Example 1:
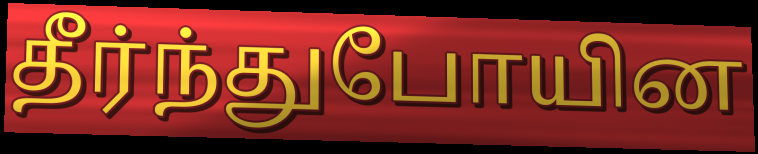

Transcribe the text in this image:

தீர்ந்துபோயின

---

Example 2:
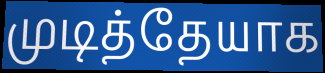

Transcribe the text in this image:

முடித்தேயாக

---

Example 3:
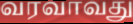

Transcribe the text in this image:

வரவாவது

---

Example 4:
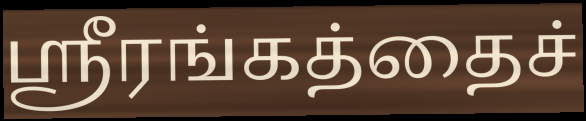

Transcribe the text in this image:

ஸ்ரீரங்கத்தைச்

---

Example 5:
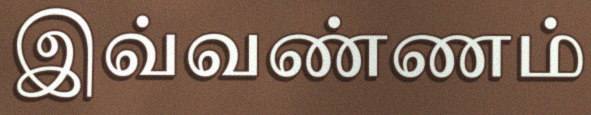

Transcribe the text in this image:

இவ்வண்ணம்